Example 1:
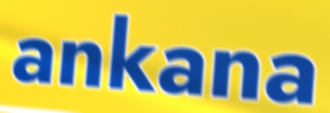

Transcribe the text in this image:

ankana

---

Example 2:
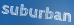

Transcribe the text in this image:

suburban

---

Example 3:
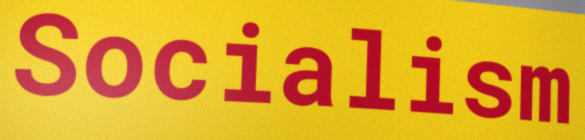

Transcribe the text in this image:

Socialism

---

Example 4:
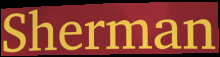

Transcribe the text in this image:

Sherman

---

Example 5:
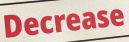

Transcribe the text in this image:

Decrease